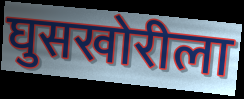
घुसखोरीला